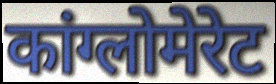
कांग्लोमेरेट